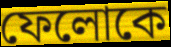
ফেলোকে